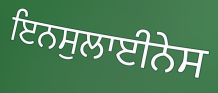
ਇਨਸੁਲਾਈਨੇਸ